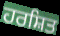
ਹਰਸ਼ਿਤ